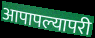
आपापल्यापरी